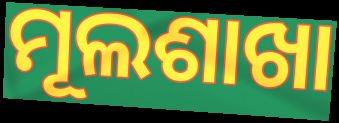
ମୂଲଶାଖା